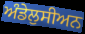
ਅੰਡੇਲੁਸੀਅਨ